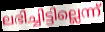
ലഭിച്ചിട്ടില്ലെന്ന്